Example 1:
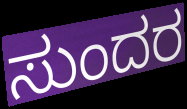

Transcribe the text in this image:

ಸುಂದರ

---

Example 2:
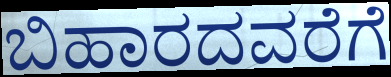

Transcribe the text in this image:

ಬಿಹಾರದವರೆಗೆ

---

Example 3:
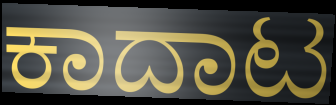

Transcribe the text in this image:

ಕಾದಾಟ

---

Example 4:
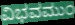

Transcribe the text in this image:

ವಿಭವಮುಂ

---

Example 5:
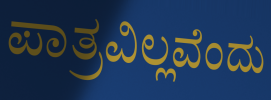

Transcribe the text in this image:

ಪಾತ್ರವಿಲ್ಲವೆಂದು